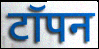
टॉपन